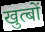
खुत्बों